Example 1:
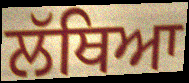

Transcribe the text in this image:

ਲੱਥਿਆ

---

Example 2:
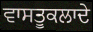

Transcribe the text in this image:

ਵਾਸਤੂਕਲਾਦੇ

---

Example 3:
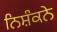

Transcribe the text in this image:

ਨਿਸ਼ੰਕਨੇ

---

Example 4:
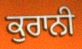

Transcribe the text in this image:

ਕੁਰਾਨੀ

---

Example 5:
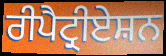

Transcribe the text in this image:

ਰੀਪੈਟ੍ਰੀਏਸ਼ਨ